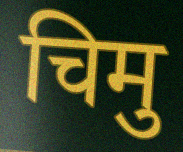
चिमु